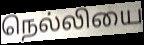
நெல்லியை